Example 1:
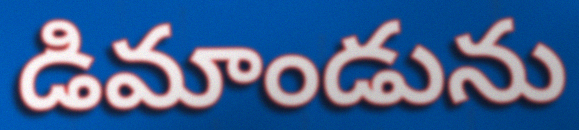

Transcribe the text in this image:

డిమాండును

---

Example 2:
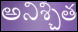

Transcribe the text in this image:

అనిశ్చిత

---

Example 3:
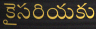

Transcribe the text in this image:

కైసరియకు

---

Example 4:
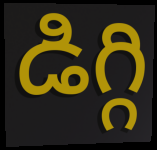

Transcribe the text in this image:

డిగ్గి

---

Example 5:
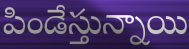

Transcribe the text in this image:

పిండేస్తున్నాయి